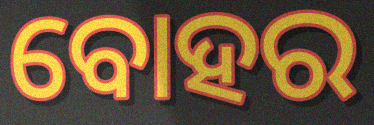
ବୋହର